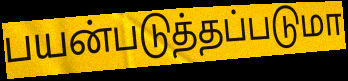
பயன்படுத்தப்படுமா